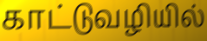
காட்டுவழியில்